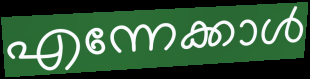
എന്നേക്കാൾ